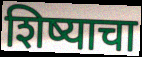
शिष्याचा